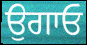
ਉਗਾਓ